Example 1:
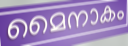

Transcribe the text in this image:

മൈനാകം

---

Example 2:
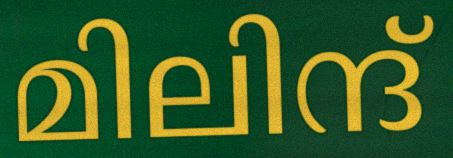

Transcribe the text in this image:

മിലിന്ദ്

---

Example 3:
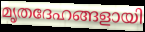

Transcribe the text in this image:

മൃതദേഹങ്ങളായി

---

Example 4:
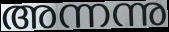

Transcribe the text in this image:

അന്നന്നു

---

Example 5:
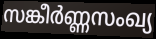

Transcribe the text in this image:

സങ്കീർണ്ണസംഖ്യ